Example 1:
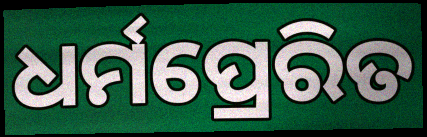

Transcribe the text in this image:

ଧର୍ମପ୍ରେରିତ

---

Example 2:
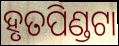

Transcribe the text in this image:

ହୃତପିଣ୍ଡଟା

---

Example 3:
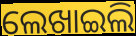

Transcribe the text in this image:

ଲେଖାଇଲି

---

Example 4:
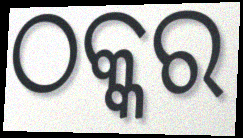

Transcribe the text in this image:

ଠକ୍କର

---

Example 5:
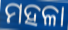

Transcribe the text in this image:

ମହଳା